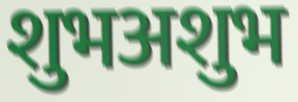
शुभअशुभ